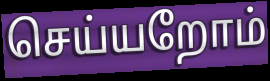
செய்யறோம்